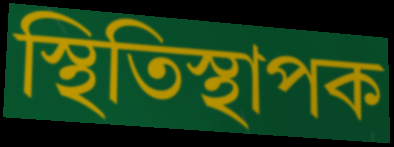
স্থিতিস্থাপক